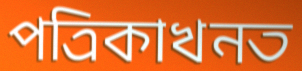
পত্ৰিকাখনত